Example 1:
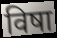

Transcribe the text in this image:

विषा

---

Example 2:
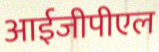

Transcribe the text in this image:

आईजीपीएल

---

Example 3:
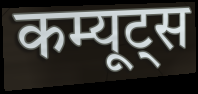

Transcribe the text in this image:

कम्यूट्स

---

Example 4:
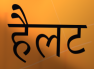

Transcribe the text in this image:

हैलट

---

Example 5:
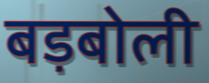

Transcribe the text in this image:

बड़बोली